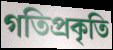
গতিপ্রকৃতি